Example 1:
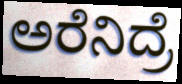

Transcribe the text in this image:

ಅರೆನಿದ್ರೆ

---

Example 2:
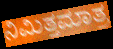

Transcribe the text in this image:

ನಿಮಿತ್ತಮಾತ್ರ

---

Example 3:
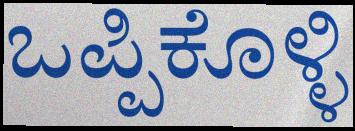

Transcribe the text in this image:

ಒಪ್ಪಿಕೊಳ್ಳಿ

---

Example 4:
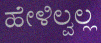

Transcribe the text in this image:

ಹೇಳಿಲ್ವಲ್ಲ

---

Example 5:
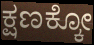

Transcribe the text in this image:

ಕ್ಷಣಕ್ಕೋ